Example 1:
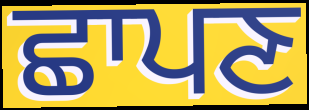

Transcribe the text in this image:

ਛਾਪਣ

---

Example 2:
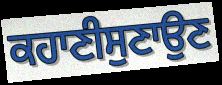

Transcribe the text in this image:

ਕਹਾਣੀਸੁਣਾਉਣ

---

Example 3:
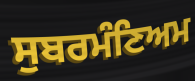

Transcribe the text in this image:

ਸੁਬਰਮੰਣਿਅਮ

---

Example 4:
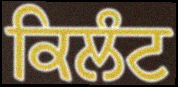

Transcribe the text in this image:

ਕਿਲੰਟ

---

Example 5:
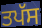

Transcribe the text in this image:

ਤਪੱਸ